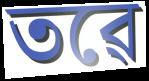
তৱে